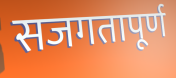
सजगतापूर्ण